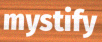
mystify